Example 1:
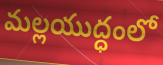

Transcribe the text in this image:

మల్లయుద్ధంలో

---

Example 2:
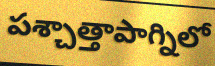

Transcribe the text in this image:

పశ్చాత్తాపాగ్నిలో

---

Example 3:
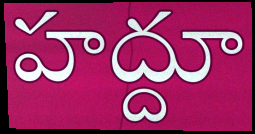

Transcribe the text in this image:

హద్దూ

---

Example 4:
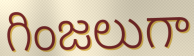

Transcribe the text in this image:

గింజలుగా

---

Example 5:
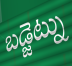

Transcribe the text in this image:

బడ్జెట్ను